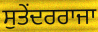
ਸੁਤੇਂਦਰਰਾਜਾ